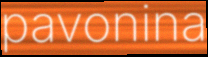
pavonina